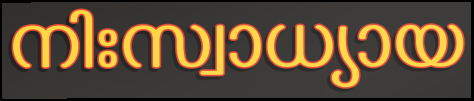
നിഃസ്വാധ്യായ